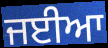
ਜਈਆ